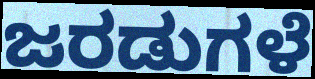
ಜರಡುಗಳೆ